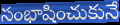
సంభాషించుకునే